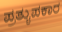
ಪ್ರತ್ಯುಪಕಾರ